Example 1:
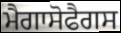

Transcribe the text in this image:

ਮੈਗਾਸੋਫੈਗਸ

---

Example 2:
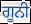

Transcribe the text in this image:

ਗੂਨੀ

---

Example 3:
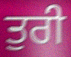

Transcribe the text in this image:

ਤੁਰੀ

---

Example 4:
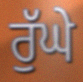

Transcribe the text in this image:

ਰੁੱਘੇ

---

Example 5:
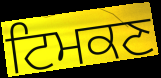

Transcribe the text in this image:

ਟਿਮਕਣ